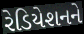
રેડિયેશનને